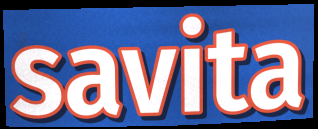
savita